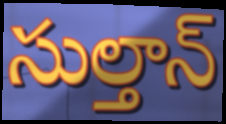
సుల్తాన్